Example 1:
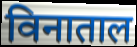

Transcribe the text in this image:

विनाताल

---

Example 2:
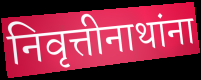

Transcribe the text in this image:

निवृत्तीनाथांना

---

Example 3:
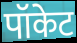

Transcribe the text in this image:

पॉकेट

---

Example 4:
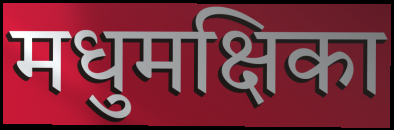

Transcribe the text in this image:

मधुमक्षिका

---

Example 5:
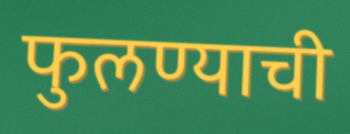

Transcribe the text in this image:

फुलण्याची